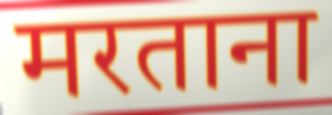
मरताना